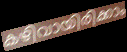
കഴിവായിരിക്കാം